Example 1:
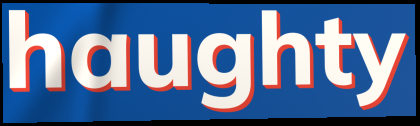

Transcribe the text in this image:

haughty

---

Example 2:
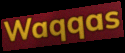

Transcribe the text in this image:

Waqqas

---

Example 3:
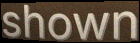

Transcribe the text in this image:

shown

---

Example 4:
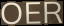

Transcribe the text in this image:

OER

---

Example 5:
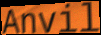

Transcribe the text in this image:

Anvil